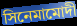
সিনেমামোদী